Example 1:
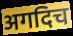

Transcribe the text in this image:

अगदिच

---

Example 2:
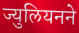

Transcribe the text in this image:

ज्युलियनने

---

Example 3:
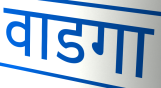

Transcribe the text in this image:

वाडगा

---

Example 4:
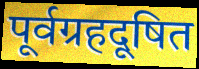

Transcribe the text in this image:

पूर्वग्रहदूषित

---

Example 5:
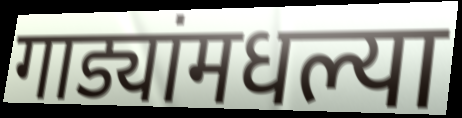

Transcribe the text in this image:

गाड्यांमधल्या